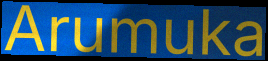
Arumuka